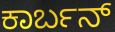
ಕಾರ್ಬನ್